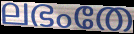
ലഭംതേ